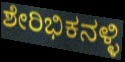
ಶೇರಿಭಿಕನಳ್ಳಿ